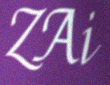
ZAi